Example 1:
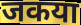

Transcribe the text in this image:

जकया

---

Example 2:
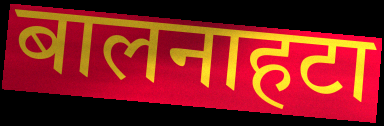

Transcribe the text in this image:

बालनाहटा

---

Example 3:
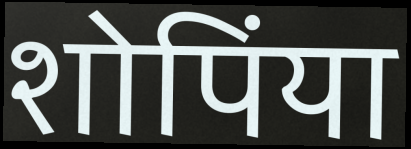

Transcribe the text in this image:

शोपिंया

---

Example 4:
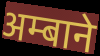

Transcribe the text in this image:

अम्बाने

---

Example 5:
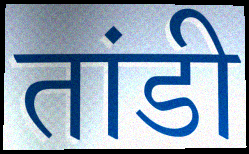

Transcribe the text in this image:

तांडी